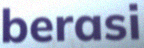
berasi